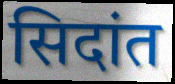
सिदांत